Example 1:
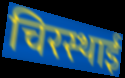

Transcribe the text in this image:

चिरस्थाई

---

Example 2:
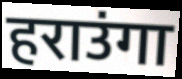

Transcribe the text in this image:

हराउंगा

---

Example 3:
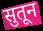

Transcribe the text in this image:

सुतून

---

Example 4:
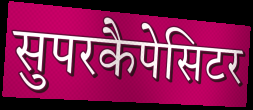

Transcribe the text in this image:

सुपरकैपेसिटर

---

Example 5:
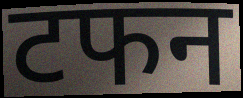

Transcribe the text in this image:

टफन